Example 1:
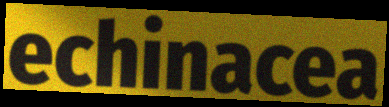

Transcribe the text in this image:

echinacea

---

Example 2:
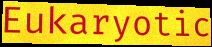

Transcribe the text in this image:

Eukaryotic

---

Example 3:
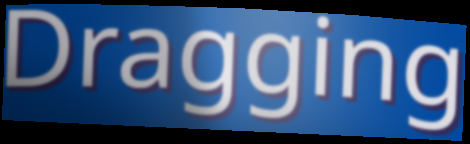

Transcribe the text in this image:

Dragging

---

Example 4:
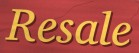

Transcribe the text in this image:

Resale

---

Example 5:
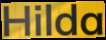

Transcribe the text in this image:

Hilda